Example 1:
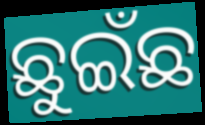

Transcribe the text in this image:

ଛୁଇଁଛ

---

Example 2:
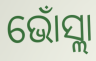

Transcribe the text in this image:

ଭୋଁସ୍ଲା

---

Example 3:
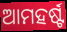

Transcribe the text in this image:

ଆମହର୍ଷ୍ଟ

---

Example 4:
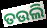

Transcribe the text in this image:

ତଉଲି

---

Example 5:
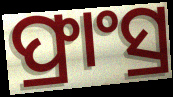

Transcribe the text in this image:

ଫ୍ରାଂସ୍ର